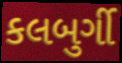
કલબુર્ગી